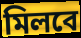
মিলবে